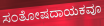
ಸಂತೋಷದಾಯಕವೂ